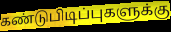
கண்டுபிடிப்புகளுக்கு